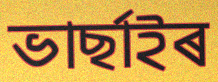
ভাৰ্ছাইৰ